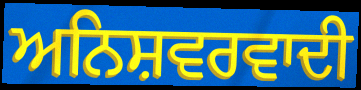
ਅਨਿਸ਼ਵਰਵਾਦੀ